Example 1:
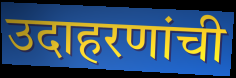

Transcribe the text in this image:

उदाहरणांची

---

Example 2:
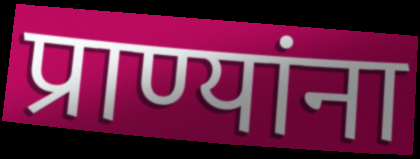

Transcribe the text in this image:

प्राण्यांना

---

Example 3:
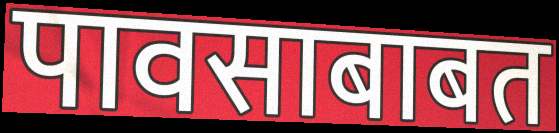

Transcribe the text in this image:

पावसाबाबत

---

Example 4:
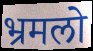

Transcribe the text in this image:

भ्रमलो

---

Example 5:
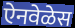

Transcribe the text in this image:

ऐनवेळेस